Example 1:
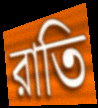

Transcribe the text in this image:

রাতি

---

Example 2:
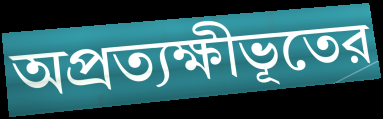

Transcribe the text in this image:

অপ্রত্যক্ষীভূতের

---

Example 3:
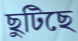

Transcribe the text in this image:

ছুটিছে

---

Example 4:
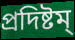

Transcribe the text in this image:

প্রদিষ্টম্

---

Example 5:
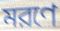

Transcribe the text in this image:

মরণে